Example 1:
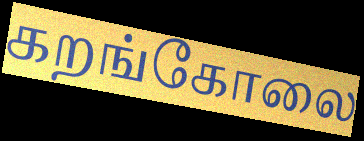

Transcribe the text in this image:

கறங்கோலை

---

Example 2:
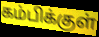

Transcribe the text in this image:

கம்பிக்குள்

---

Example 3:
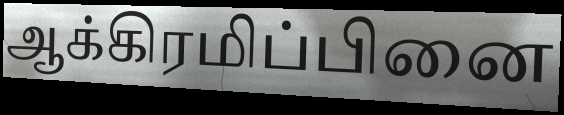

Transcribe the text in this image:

ஆக்கிரமிப்பினை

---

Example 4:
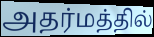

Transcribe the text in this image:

அதர்மத்தில்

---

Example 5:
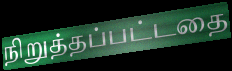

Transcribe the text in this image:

நிறுத்தப்பட்டதை